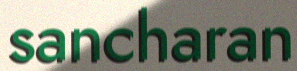
sancharan